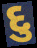
દુ